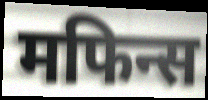
मफिन्स